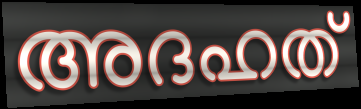
അദഹത്